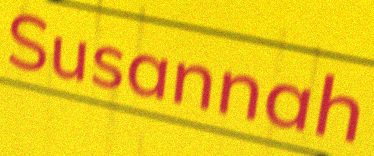
Susannah